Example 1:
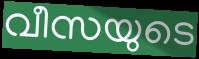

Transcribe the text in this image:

വീസയുടെ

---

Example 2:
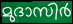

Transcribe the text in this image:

മുദാസിർ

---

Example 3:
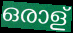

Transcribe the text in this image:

ഒരാള്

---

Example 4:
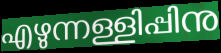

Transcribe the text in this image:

എഴുന്നള്ളിപ്പിനു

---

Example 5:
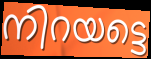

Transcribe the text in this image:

നിറയട്ടെ